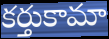
కర్తుకామా